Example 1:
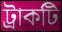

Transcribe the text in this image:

ট্রাকটি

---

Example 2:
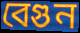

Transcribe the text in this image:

বেগুন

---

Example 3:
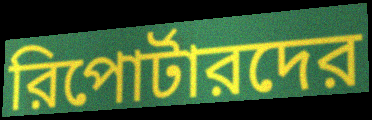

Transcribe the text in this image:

রিপোর্টারদের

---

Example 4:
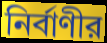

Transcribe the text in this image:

নির্বাণীর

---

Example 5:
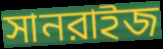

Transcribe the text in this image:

সানরাইজ